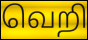
வெறி